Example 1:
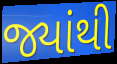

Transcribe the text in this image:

જ્યાંથી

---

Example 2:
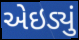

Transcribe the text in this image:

એઇડ્યું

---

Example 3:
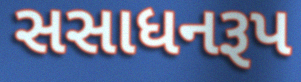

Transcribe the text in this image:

સસાધનરૂપ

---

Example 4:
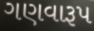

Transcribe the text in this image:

ગણવારૂપ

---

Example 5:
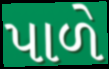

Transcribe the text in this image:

પાળે